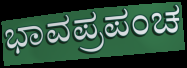
ಭಾವಪ್ರಪಂಚ